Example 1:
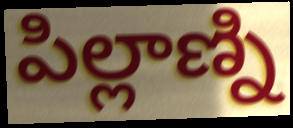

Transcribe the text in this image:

పిల్లాణ్ని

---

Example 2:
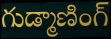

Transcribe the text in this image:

గుడ్మాణింగ్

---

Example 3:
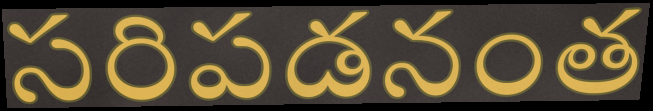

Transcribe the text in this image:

సరిపడనంత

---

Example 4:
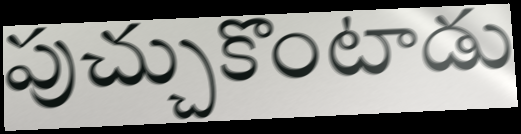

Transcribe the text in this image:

పుచ్చుకొంటాడు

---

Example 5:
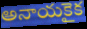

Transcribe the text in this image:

అనాయకైక